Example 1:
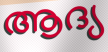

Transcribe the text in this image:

ആദ്യ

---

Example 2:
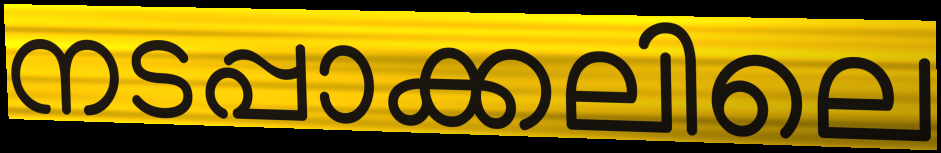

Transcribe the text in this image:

നടപ്പാക്കലിലെ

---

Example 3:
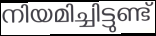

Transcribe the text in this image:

നിയമിച്ചിട്ടുണ്ട്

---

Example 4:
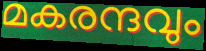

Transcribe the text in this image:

മകരന്ദവും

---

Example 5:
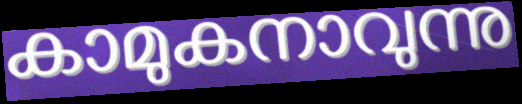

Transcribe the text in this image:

കാമുകനാവുന്നു